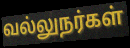
வல்லுநர்கள்